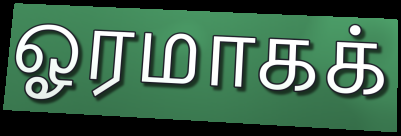
ஓரமாகக்